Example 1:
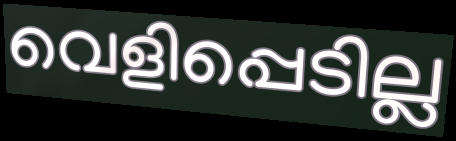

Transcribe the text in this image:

വെളിപ്പെടില്ല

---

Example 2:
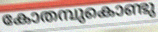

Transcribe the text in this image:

കോതമ്പുകൊണ്ടു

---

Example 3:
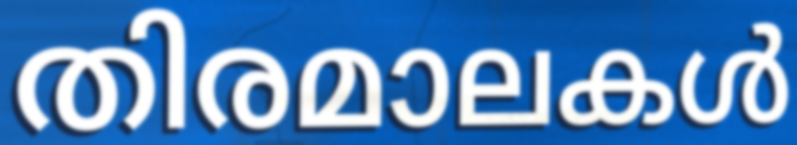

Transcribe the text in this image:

തിരമാലകൾ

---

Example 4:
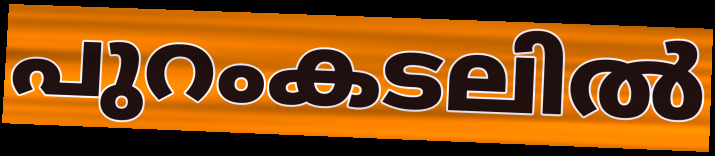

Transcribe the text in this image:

പുറംകടലിൽ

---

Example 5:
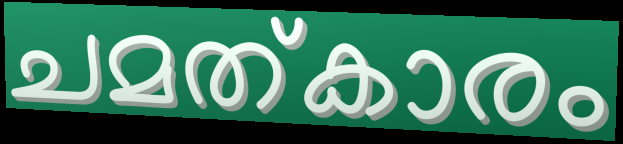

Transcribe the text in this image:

ചമത്കാരം